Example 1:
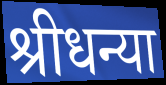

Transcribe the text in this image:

श्रीधन्या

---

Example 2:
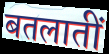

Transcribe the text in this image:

बतलातीं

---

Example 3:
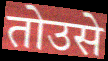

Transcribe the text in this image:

तोउसे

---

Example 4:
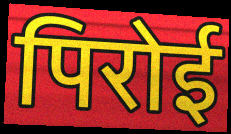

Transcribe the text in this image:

पिरोई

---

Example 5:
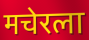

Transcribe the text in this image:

मचेरला